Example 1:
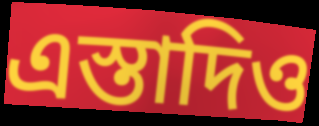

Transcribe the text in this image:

এস্তাদিও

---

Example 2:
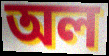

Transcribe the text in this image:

অল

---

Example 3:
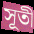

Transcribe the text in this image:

সূতী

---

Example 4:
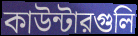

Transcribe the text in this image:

কাউন্টারগুলি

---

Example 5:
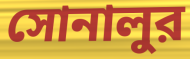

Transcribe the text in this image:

সোনালুর